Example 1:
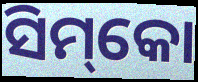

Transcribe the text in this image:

ସିମ୍‌କୋ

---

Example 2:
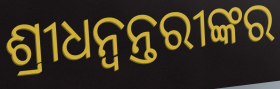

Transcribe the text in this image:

ଶ୍ରୀଧନ୍ୱନ୍ତରୀଙ୍କର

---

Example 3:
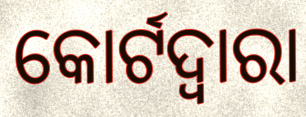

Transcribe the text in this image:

କୋର୍ଟଦ୍ୱାରା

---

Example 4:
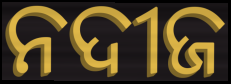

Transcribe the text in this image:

ନଦୀଜ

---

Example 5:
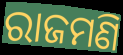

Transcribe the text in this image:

ରାଜମଣି